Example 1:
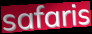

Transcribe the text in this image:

safaris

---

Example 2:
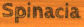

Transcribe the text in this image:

Spinacia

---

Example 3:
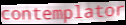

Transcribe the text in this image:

contemplator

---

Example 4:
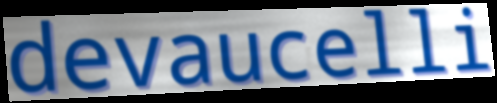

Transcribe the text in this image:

devaucelli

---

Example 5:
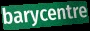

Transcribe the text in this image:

barycentre